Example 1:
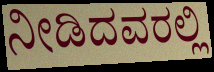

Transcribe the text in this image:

ನೀಡಿದವರಲ್ಲಿ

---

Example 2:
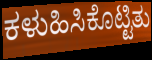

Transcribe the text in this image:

ಕಳುಹಿಸಿಕೊಟ್ಟಿತು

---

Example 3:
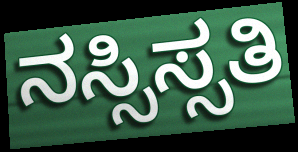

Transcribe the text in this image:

ನಸ್ಸಿಸ್ಸತಿ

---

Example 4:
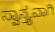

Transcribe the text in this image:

ಸ್ವಾಸ್ತ್ಯವಾಗಿ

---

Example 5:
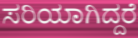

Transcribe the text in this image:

ಸರಿಯಾಗಿದ್ದರೆ